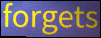
forgets